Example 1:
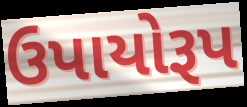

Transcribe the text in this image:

ઉપાયોરૂપ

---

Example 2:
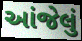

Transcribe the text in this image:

આંજેલું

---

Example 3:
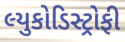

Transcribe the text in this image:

લ્યુકોડિસ્ટ્રોફી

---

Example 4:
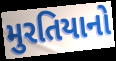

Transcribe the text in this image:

મુરતિયાનો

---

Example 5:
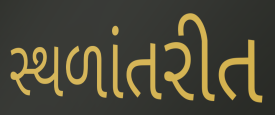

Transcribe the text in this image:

સ્થળાંતરીત